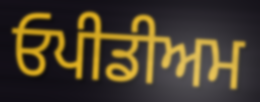
ਓਪੀਡੀਅਮ